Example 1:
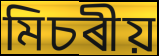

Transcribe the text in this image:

মিচৰীয়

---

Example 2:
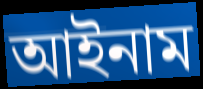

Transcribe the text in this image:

আইনাম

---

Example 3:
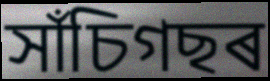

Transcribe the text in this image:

সাঁচিগছৰ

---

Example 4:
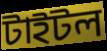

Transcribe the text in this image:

টাইটল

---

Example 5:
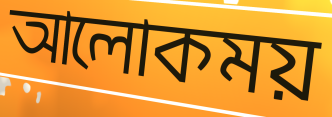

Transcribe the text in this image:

আলোকময়